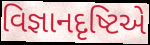
વિજ્ઞાનદૃષ્ટિએ